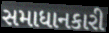
સમાધાનકારી